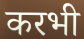
करभी